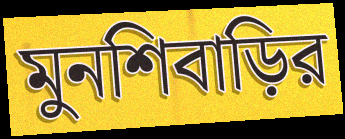
মুনশিবাড়ির